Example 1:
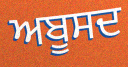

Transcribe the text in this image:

ਅਬੂਸਦ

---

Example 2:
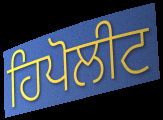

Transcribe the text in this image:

ਹਿਪੋਲੀਟ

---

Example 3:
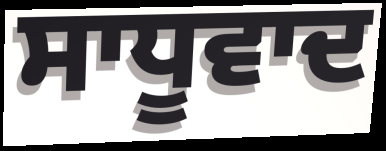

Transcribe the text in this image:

ਸਾਧੂਵਾਦ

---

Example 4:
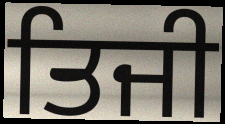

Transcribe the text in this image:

ਤਿਜੀ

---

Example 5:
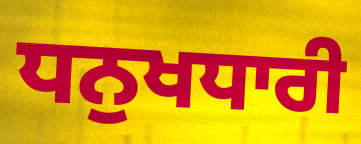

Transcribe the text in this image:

ਧਨੁਖਧਾਰੀ